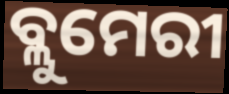
ବ୍ଲୁମେରୀ